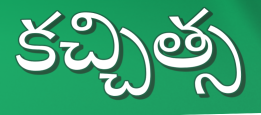
కచ్చిత్స